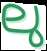
ലു